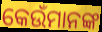
କେଉଁମାନଙ୍କ